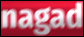
nagad